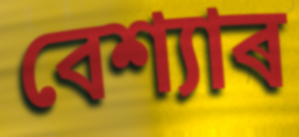
বেশ্যাৰ